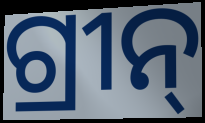
ଗ୍ରୀନ୍